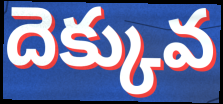
దెక్కువ